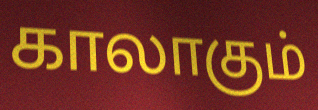
காலாகும்